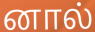
னால்